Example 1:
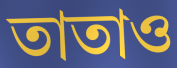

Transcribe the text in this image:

তাতাও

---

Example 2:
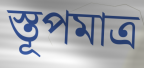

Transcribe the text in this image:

স্তূপমাত্র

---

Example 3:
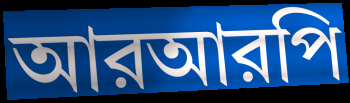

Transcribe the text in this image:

আরআরপি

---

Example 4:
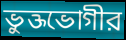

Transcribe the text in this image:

ভুক্তভোগীর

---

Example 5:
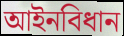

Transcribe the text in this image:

আইনবিধান